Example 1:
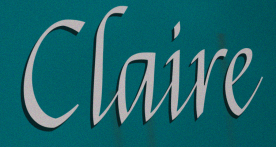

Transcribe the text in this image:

Claire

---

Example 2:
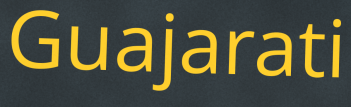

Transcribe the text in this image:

Guajarati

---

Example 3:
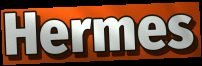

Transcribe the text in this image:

Hermes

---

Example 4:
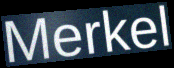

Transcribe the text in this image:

Merkel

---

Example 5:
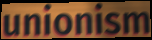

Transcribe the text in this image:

unionism